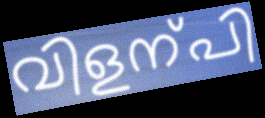
വിളന്പി